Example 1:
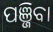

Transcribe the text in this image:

ପଞ୍ଜିବା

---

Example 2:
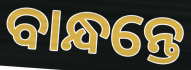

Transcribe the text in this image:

ବାନ୍ଧନ୍ତେ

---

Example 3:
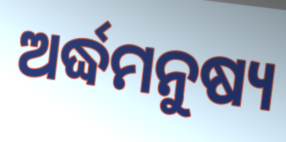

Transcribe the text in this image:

ଅର୍ଦ୍ଧମନୁଷ୍ୟ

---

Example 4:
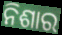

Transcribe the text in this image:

ନିଶାର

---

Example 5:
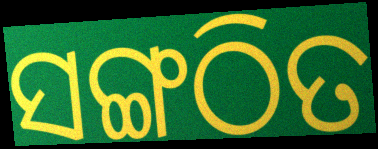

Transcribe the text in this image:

ସଙ୍ଗଠିତ